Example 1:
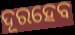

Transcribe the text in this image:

ଦୂରହେବ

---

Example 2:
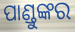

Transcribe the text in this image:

ପାଣ୍ଡୁଙ୍କର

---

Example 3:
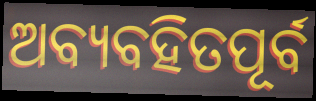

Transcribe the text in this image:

ଅବ୍ୟବହିତପୂର୍ବ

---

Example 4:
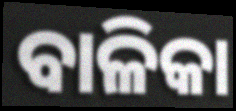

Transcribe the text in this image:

ବାଳିକା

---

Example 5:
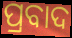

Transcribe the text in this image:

ପ୍ରବାଦ